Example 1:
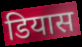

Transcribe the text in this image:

डियास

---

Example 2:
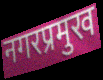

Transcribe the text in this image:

नगरप्रमुख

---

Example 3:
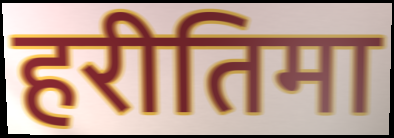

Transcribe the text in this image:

हरीतिमा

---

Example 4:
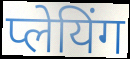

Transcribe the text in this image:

प्लेयिंग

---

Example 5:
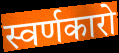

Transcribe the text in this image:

स्वर्णकारो